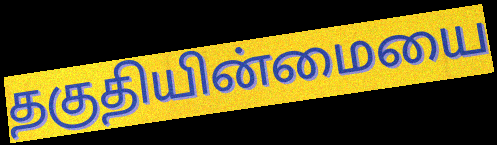
தகுதியின்மையை